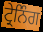
ਟ੍ਰੇਨਿੰਗ